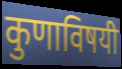
कुणाविषयी